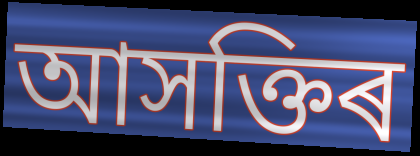
আসক্তিৰ